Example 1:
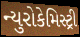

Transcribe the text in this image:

ન્યુરોકેમિસ્ટ્રી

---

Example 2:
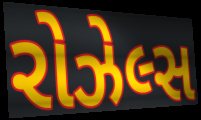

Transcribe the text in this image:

રોઝેલ્સ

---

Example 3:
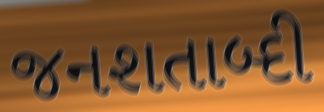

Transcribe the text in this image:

જનશતાબ્દી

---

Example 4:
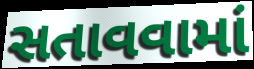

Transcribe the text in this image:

સતાવવામાં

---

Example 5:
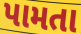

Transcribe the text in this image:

પામતા